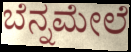
ಬೆನ್ನಮೇಲೆ